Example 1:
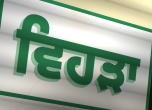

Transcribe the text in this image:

ਵਿਹੜਾ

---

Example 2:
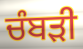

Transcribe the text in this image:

ਚੰਬੜੀ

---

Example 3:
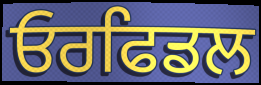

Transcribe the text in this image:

ਓਰਫਿਡਲ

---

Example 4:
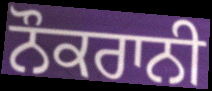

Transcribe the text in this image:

ਨੌਕਰਾਨੀ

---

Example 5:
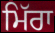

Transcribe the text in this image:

ਮਿੱਰਾ